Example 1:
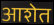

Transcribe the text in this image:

आशेत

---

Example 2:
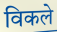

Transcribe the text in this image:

विकले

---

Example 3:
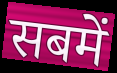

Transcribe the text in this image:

सबमें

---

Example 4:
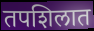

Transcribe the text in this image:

तपशिलात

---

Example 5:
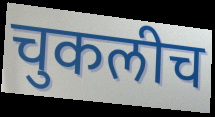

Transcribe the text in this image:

चुकलीच